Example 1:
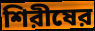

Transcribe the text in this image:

শিরীষের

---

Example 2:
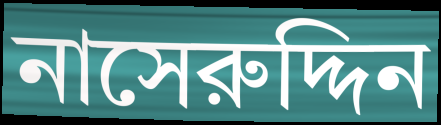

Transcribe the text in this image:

নাসেরুদ্দিন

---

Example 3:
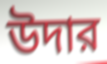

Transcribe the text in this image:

উদার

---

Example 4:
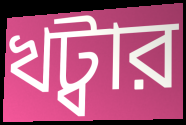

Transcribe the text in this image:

খট্বার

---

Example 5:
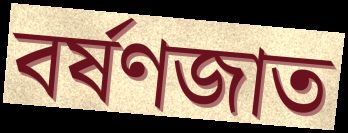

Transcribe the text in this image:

বর্ষণজাত